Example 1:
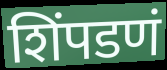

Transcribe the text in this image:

शिंपडणं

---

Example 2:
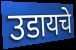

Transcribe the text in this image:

उडायचे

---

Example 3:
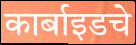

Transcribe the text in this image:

कार्बाइडचे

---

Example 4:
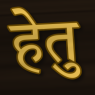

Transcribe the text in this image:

हेतु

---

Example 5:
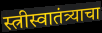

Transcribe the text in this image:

स्त्रीस्वातंत्र्याचा